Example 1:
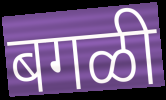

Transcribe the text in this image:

बगळी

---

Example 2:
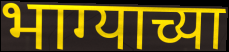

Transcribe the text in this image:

भाग्याच्या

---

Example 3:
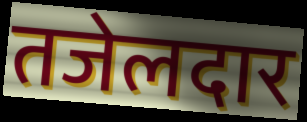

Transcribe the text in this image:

तजेलदार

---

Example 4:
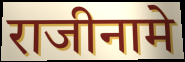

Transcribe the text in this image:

राजीनामे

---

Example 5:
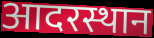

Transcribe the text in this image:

आदरस्थान